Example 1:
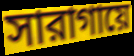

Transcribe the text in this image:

সারাগায়ে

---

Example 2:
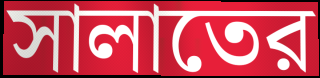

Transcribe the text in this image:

সালাতের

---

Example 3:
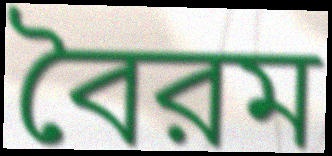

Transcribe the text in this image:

বৈরম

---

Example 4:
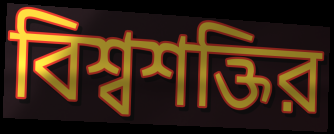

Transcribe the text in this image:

বিশ্বশক্তির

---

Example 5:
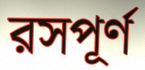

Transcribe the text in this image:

রসপূর্ণ